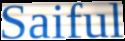
Saiful